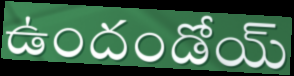
ఉందండోయ్